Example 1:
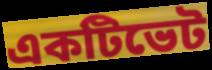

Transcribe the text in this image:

একটিভেট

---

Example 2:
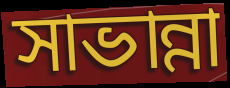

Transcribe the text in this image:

সাভান্না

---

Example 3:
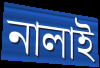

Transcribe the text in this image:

নালাই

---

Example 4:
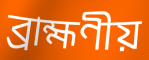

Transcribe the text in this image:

ব্রাহ্মণীয়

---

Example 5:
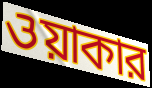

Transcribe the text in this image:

ওয়াকার